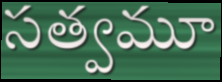
సత్వమూ